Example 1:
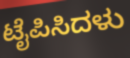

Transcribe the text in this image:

ಟೈಪಿಸಿದಳು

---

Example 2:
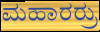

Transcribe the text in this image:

ಮಹಾರರ್ರು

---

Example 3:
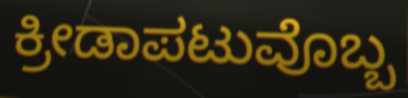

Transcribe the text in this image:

ಕ್ರೀಡಾಪಟುವೊಬ್ಬ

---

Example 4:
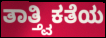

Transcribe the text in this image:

ತಾತ್ತ್ವಿಕತೆಯ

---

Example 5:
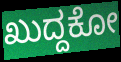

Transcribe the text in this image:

ಖುದ್ದಕೋ